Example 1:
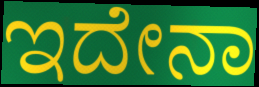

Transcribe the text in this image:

ಇದೇನಾ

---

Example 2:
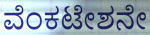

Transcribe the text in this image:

ವೆಂಕಟೇಶನೇ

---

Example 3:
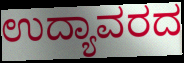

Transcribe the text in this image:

ಉದ್ಯಾವರದ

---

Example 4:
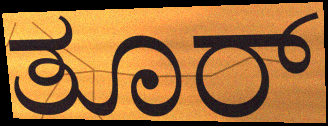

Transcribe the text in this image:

ತೂರ್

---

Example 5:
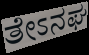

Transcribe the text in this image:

ತೇಽನಘ